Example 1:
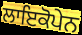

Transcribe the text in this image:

ਲਾਇਕੋਪੇਨ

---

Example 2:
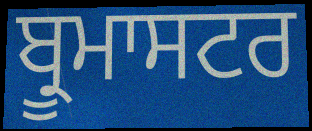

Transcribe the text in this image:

ਬ੍ਰੂਮਾਸਟਰ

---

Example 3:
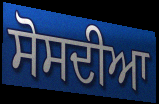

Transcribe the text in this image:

ਸੋਸਦੀਆ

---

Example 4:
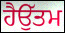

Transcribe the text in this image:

ਹੈਉੱਤਮ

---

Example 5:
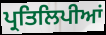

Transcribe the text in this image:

ਪ੍ਰਤਿਲਿਪੀਆਂ